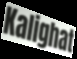
Kalighat